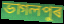
ভাগলপুৰ